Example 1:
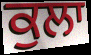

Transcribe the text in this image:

ਕੁਲਾ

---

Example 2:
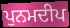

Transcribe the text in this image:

ਪੁਨਮਦੀਪ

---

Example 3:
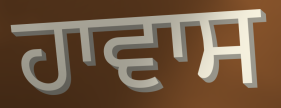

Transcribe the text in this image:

ਹਾਵਾਸ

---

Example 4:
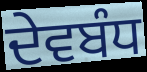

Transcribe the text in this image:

ਦੇਵਬੰਧ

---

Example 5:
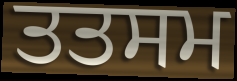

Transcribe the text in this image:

ਤਤਸਮ